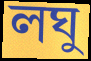
লঘু